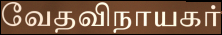
வேதவிநாயகர்